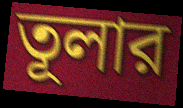
তূলার